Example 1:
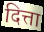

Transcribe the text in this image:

दित्ता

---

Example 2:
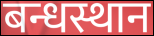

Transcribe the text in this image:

बन्धस्थान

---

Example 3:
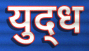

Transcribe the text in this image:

युद्‍ध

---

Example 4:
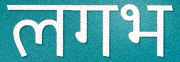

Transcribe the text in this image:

लगभ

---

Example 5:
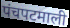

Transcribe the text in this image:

पंचपटमाली